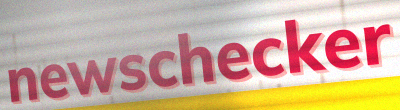
newschecker